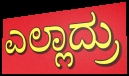
ಎಲ್ಲಾದ್ರು